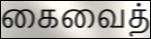
கைவைத்